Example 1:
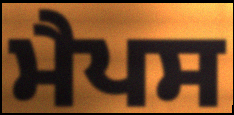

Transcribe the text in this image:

ਮੈਪਸ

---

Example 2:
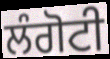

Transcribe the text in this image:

ਲੰਗੋਟੀ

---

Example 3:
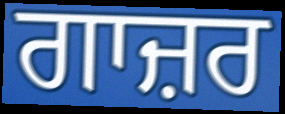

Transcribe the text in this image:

ਗਾਜ਼ਰ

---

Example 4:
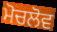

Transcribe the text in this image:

ਮੋਚਲੋਵ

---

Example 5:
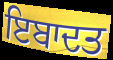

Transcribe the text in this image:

ਇਬਾਦਤ